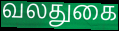
வலதுகை